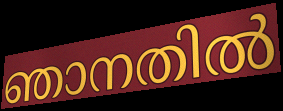
ഞാനതിൽ